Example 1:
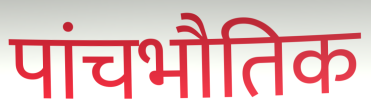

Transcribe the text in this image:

पांचभौतिक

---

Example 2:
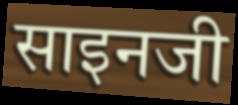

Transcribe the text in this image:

साइनजी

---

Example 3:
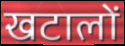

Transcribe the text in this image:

खटालों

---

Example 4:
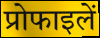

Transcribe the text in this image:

प्रोफाइलें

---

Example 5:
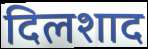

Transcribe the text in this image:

दिलशाद